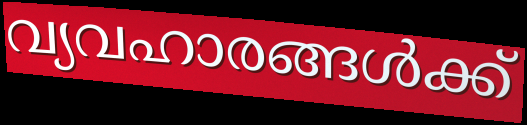
വ്യവഹാരങ്ങൾക്ക്